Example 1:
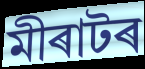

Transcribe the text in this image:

মীৰাটৰ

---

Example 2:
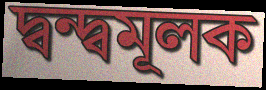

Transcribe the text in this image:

দ্বন্দ্বমূলক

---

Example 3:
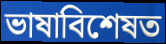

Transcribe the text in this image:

ভাষাবিশেষত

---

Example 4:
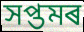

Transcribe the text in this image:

সপ্তমৰ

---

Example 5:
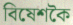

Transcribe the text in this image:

বিষেশকৈ